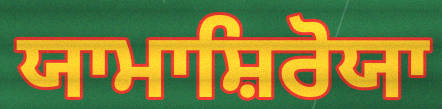
ਯਾਮਾਸ਼ਿਰੋਯਾ